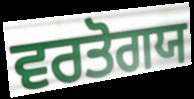
ਵਰਤੋਗਯ